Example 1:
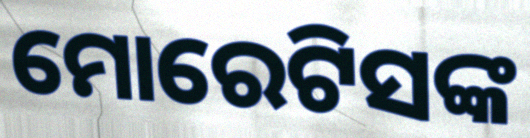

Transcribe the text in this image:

ମୋରେଟିସଙ୍କ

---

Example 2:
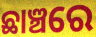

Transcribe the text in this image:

ଛାଞ୍ଚରେ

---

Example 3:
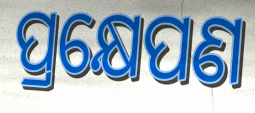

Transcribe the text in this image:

ପ୍ରକ୍ଷେପଣ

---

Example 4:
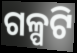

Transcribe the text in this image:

ଗଳ୍ପଟି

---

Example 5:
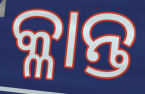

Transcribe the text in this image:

କ୍ଳାନ୍ତ